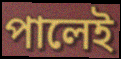
পালেই